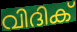
വിദിക്